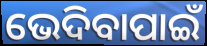
ଭେଦିବାପାଇଁ